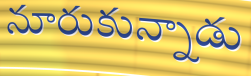
నూరుకున్నాడు